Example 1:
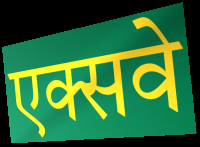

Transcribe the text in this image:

एक्सवे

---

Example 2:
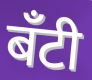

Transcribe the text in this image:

बँटी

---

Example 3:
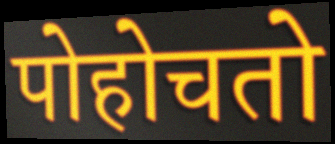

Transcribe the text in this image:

पोहोचतो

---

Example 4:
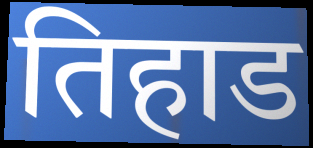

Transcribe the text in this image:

तिहाड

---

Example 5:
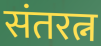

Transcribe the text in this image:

संतरत्न